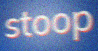
stoop